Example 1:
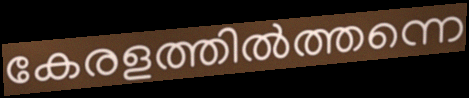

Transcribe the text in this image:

കേരളത്തിൽത്തന്നെ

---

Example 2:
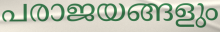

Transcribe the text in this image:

പരാജയങ്ങളും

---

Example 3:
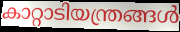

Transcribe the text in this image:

കാറ്റാടിയന്ത്രങ്ങൾ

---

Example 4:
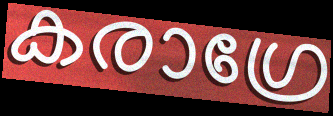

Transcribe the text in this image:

കരാഗ്രേ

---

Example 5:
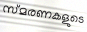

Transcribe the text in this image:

സ്മരണകളുടെ